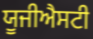
ਯੂਜੀਐਸਟੀ